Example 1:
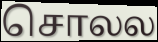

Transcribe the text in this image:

சொலல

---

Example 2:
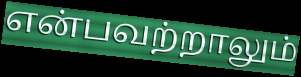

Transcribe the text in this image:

என்பவற்றாலும்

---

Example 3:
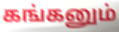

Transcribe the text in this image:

கங்கனும்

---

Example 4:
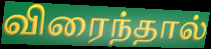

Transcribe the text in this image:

விரைந்தால்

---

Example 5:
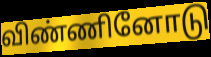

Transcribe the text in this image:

விண்ணினோடு